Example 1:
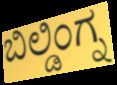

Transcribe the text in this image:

ಬಿಲ್ಡಿಂಗ್ನ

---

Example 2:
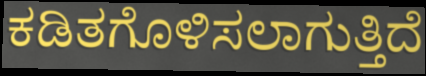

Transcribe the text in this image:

ಕಡಿತಗೊಳಿಸಲಾಗುತ್ತಿದೆ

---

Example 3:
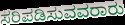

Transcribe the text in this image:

ಸರಿಪಡಿಸುವವರಾರು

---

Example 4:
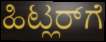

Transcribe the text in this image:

ಹಿಟ್ಲರ್‌ಗೆ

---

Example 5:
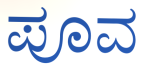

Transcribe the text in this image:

ಪೂವ